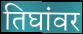
तिघांवर